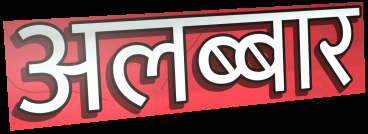
अलब्बार